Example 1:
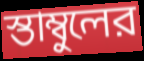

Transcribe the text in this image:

স্তাম্বুলের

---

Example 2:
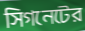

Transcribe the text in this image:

সিগনেটের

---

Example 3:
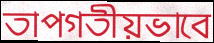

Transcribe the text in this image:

তাপগতীয়ভাবে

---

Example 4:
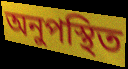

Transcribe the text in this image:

অনুপস্থিত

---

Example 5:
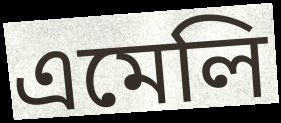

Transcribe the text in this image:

এমেলি